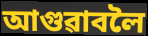
আগুৱাবলৈ